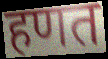
हणत